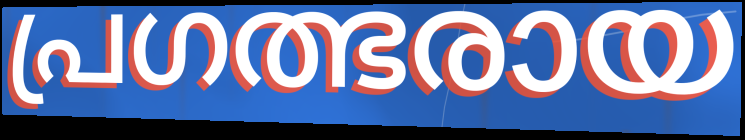
പ്രഗത്ഭരായ